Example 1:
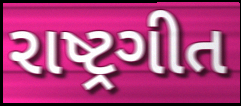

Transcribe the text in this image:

રાષ્ટ્રગીત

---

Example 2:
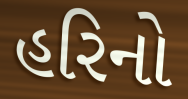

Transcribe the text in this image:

હરિનો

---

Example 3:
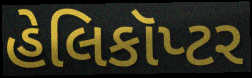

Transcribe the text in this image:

હેલિકૉપ્ટર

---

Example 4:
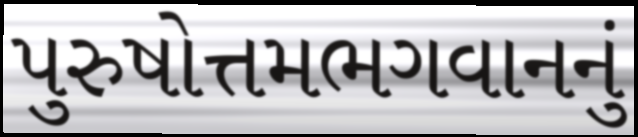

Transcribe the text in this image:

પુરુષોત્તમભગવાનનું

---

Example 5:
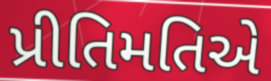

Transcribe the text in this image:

પ્રીતિમતિએ